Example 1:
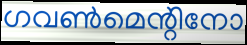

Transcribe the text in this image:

ഗവൺമെന്റിനോ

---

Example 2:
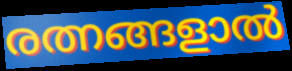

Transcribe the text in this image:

രത്നങ്ങളാൽ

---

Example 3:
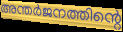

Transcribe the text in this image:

അന്തർജനത്തിന്റെ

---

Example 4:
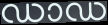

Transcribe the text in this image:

ഡാഡ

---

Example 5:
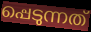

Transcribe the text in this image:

പ്പെടുന്നത്